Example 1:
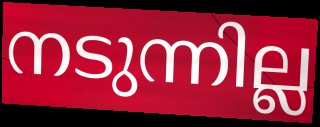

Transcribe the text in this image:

നടുന്നില്ല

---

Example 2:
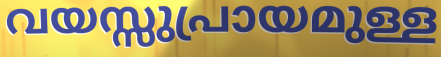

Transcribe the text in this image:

വയസ്സുപ്രായമുള്ള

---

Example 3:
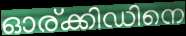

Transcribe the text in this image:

ഓര്ക്കിഡിനെ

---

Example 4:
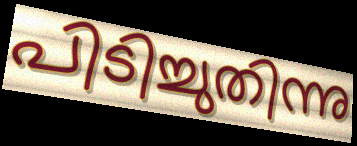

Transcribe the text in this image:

പിടിച്ചുതിന്നു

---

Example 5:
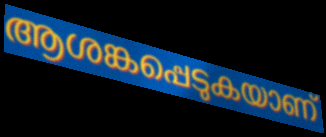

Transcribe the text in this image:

ആശങ്കപ്പെടുകയാണ്